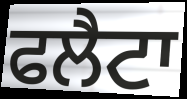
ਫਲੈਟਾ